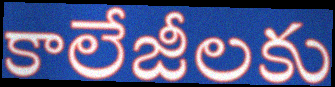
కాలేజీలకు